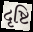
દૃષ્ટિ